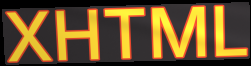
XHTML